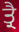
ਤ੍ਰੈ